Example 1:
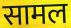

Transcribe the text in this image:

सामल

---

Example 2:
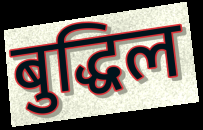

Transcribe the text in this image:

बुद्धिल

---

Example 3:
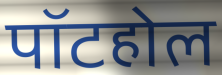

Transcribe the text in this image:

पॉटहोल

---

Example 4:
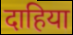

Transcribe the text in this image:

दाहिया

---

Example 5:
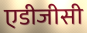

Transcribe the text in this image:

एडीजीसी